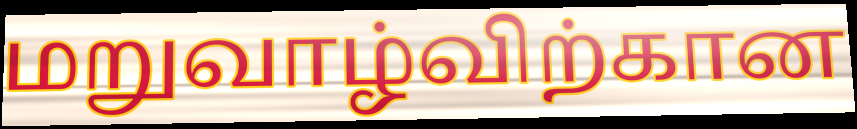
மறுவாழ்விற்கான